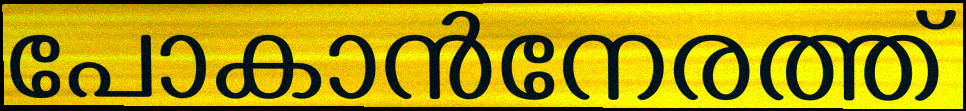
പോകാൻനേരത്ത്